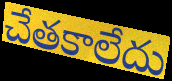
చేతకాలేదు